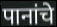
पानांचे